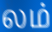
லம்